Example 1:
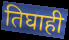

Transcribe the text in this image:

तिघाही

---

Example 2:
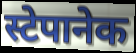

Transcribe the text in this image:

स्टेपानेक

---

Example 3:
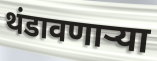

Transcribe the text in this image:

थंडावणाऱ्या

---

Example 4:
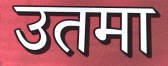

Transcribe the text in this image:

उतमा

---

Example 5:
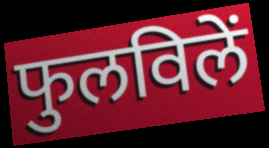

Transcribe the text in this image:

फुलविलें